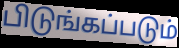
பிடுங்கப்படும்